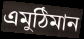
এমুঠিমান